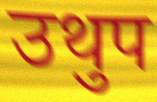
उथुप